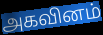
அகவினம்